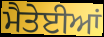
ਮੈਤੇਈਆਂ